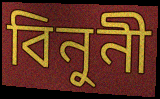
বিনুনী